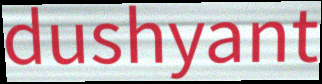
dushyant